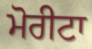
ਮੋਰੀਟਾ